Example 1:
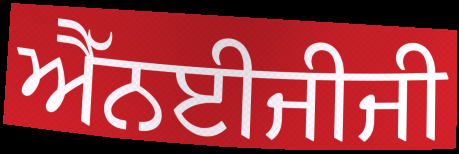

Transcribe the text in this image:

ਐੱਨਈਜੀਜੀ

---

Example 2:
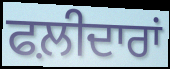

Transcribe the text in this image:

ਫਲ਼ੀਦਾਰਾਂ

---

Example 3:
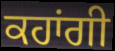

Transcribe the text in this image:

ਕਹਾਂਗੀ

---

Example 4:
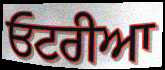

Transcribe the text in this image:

ਓਟਰੀਆ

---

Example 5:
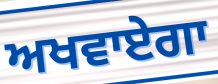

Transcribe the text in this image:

ਅਖਵਾਏਗਾ